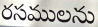
రసములను